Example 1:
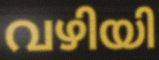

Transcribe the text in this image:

വഴിയി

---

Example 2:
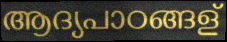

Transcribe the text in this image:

ആദ്യപാഠങ്ങള്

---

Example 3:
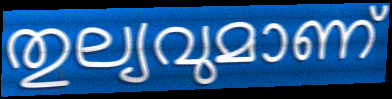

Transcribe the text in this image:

തുല്യവുമാണ്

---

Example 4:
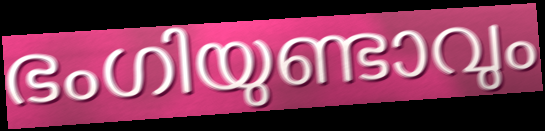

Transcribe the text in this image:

ഭംഗിയുണ്ടാവും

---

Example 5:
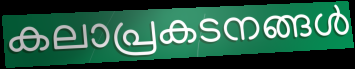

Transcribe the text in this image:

കലാപ്രകടനങ്ങൾ